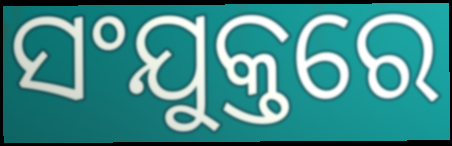
ସଂଯୁକ୍ତରେ